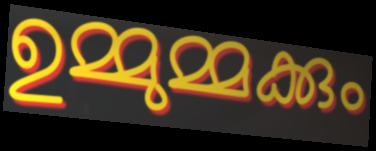
ഉമ്മുമ്മക്കും